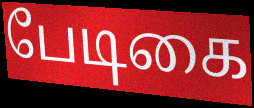
பேடிகை